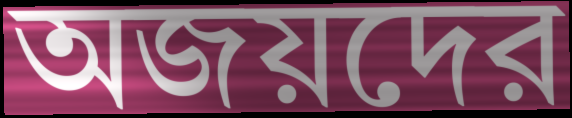
অজয়দের